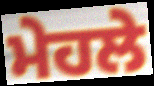
ਮੇਹਲੇ